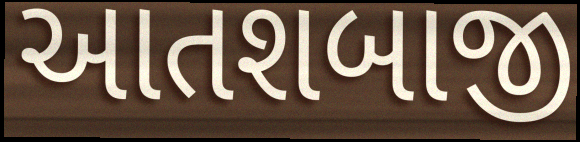
આતશબાજી